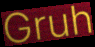
Gruh